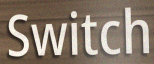
Switch